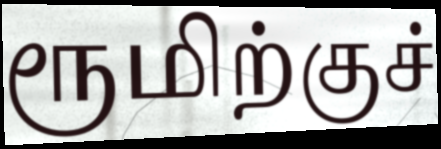
ரூமிற்குச்